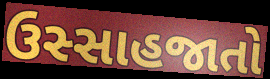
ઉસ્સાહજાતો